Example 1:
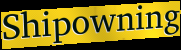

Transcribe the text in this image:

Shipowning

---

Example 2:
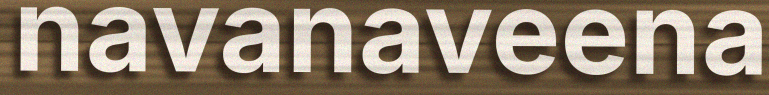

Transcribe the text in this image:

navanaveena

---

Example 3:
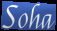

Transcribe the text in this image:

Soha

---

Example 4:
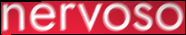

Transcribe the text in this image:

nervoso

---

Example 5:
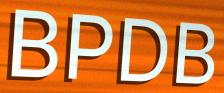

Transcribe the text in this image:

BPDB